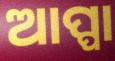
ଆପ୍ପା